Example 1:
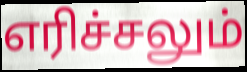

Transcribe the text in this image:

எரிச்சலும்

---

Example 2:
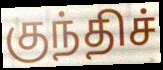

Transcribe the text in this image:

குந்திச்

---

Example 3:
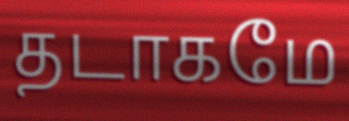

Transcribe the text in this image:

தடாகமே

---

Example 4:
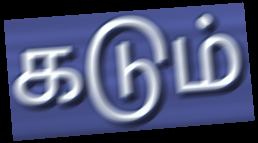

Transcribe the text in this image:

கடும்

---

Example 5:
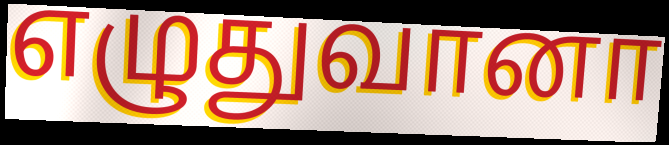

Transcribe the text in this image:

எழுதுவானா